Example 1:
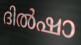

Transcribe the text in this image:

ദിൽഷാ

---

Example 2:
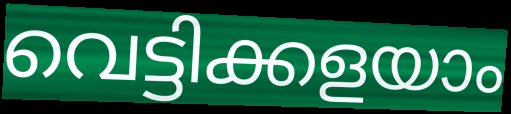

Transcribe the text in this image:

വെട്ടിക്കളയാം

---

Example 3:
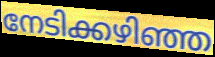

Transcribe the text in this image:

നേടിക്കഴിഞ്ഞ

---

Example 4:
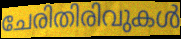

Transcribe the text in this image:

ചേരിതിരിവുകൾ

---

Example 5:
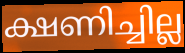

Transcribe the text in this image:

ക്ഷണിച്ചില്ല